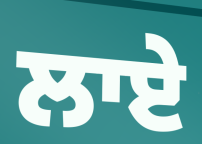
ਲਾਏ